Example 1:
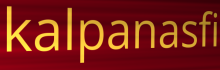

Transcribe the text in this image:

kalpanasfi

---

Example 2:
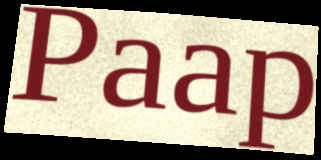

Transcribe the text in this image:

Paap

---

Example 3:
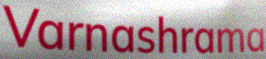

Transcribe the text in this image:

Varnashrama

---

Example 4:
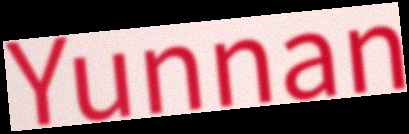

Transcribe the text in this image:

Yunnan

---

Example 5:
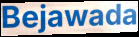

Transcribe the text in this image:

Bejawada